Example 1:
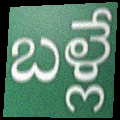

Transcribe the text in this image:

బళ్లే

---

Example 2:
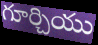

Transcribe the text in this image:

గూర్చియు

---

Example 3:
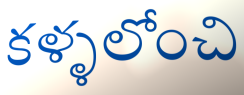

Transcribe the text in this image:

కళ్ళలోంచి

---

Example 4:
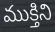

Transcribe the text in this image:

ముక్తిని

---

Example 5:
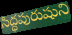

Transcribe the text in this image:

సిద్ధపురుషుని